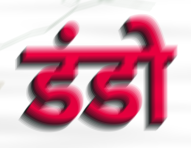
डंडो